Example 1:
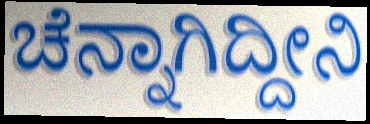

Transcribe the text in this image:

ಚೆನ್ನಾಗಿದ್ದೀನಿ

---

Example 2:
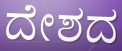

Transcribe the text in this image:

ದೇಶದ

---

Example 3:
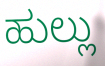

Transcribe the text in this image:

ಹುಲ್ಲು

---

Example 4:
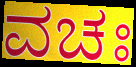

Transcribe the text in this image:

ವಚಃ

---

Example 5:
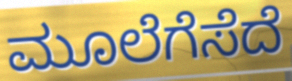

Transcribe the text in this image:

ಮೂಲೆಗೆಸೆದೆ